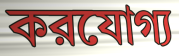
করযোগ্য